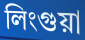
লিংগুয়া